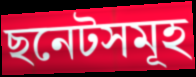
ছনেটসমূহ